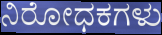
ನಿರೋಧಕಗಳು